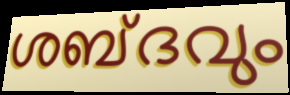
ശബ്ദവും